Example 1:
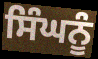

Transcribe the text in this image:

ਸਿੰਘਨੂੰ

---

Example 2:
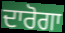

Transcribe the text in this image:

ਦਾਰੋਗਾ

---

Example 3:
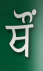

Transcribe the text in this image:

ਥੌਂ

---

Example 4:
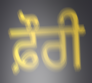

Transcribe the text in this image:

ਫ਼ੌਰੀ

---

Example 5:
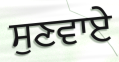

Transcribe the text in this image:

ਸੁਣਵਾਏ